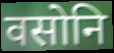
वसोनि